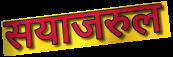
सयाजरुल